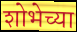
शोभेच्या